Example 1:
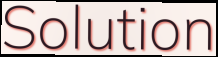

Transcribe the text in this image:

Solution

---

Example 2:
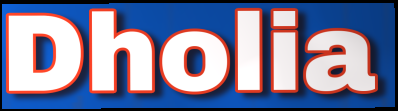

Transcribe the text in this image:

Dholia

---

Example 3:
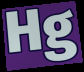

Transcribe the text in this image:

Hg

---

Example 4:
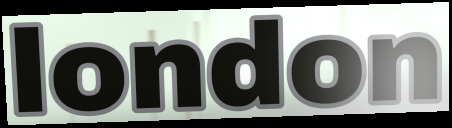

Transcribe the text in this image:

london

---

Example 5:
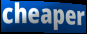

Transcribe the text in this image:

cheaper